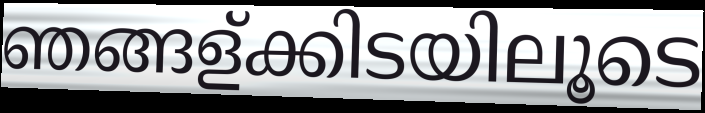
ഞങ്ങള്ക്കിടയിലൂടെ